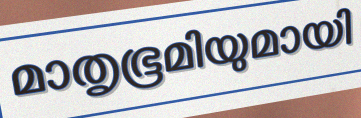
മാതൃഭൂമിയുമായി